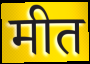
मीत